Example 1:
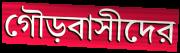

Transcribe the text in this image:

গৌড়বাসীদের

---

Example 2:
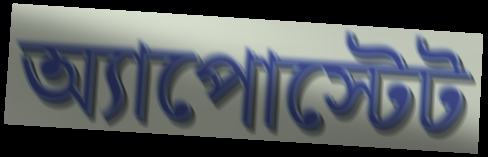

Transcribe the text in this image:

অ্যাপোস্টেট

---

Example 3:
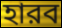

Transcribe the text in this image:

হারব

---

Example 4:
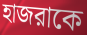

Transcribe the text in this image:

হাজরাকে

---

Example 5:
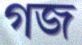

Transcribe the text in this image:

গজ